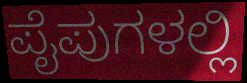
ಪೈಪುಗಳಲ್ಲಿ